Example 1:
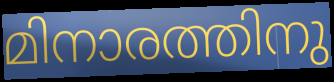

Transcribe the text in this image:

മിനാരത്തിനു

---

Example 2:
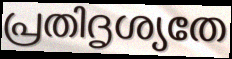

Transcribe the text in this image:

പ്രതിദൃശ്യതേ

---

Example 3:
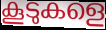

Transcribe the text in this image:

കൂടുകളെ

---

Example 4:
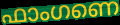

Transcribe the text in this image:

ഫാംഗണെ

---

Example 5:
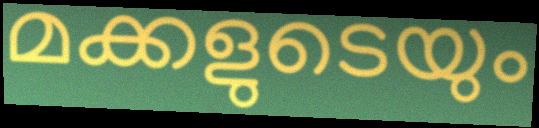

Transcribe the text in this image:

മക്കളുടെയും